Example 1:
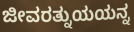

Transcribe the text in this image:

ಜೀವರತ್ನುಯಯನ್ನ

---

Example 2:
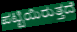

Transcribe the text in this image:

ಪಟ್ಟಿಯಿರುತ್ತದೆ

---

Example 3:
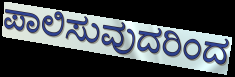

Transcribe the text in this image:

ಪಾಲಿಸುವುದರಿಂದ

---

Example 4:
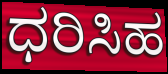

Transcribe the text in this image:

ಧರಿಸಿಹ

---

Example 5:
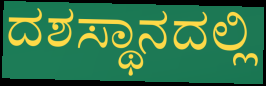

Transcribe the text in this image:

ದಶಸ್ಥಾನದಲ್ಲಿ